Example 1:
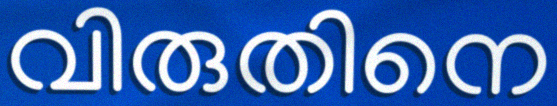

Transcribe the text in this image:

വിരുതിനെ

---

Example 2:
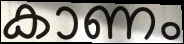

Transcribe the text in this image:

കാണം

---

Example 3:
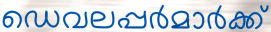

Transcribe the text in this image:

ഡെവലപ്പർമാർക്ക്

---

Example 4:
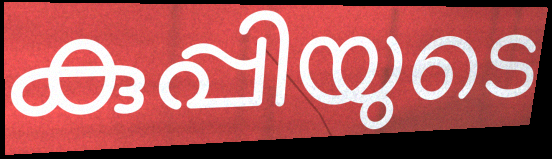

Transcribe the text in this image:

കുപ്പിയുടെ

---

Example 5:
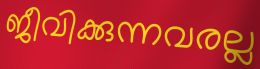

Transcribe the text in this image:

ജീവിക്കുന്നവരല്ല